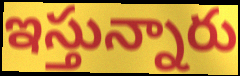
ఇస్తున్నారు